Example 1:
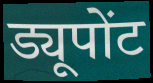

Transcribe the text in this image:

ड्यूपोंट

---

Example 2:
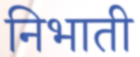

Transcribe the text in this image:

निभाती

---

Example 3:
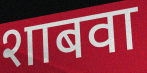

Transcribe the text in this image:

शाबवा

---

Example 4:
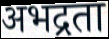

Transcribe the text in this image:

अभद्रता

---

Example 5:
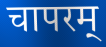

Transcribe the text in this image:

चापरम्